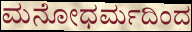
ಮನೋಧರ್ಮದಿಂದ